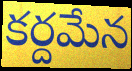
కర్దమేన